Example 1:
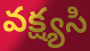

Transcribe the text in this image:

వక్ష్యసి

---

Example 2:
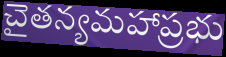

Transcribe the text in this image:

చైతన్యమహాప్రభు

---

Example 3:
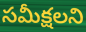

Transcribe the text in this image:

సమీక్షలని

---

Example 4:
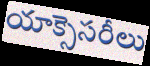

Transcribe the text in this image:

యాక్సెసరీలు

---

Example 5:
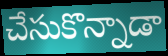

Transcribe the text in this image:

చేసుకొన్నాడా